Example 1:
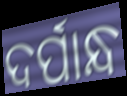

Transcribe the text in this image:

ଦର୍ପାନ୍ଧ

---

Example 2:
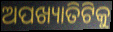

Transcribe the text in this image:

ଅପଖ୍ୟାତିଟିକୁ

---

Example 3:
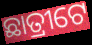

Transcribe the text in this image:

ଛାତ୍ରୀଟେ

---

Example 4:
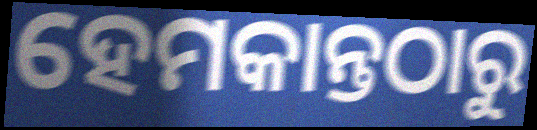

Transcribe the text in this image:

ହେମକାନ୍ତଠାରୁ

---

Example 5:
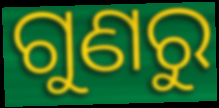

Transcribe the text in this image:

ଗୁଣରୁ